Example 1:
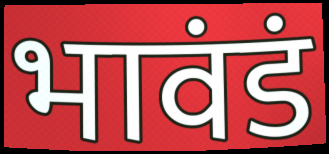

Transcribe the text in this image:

भावंडं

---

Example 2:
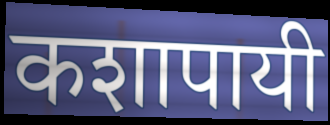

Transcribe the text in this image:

कशापायी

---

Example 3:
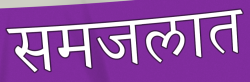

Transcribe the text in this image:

समजलात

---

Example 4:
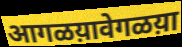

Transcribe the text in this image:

आगळय़ावेगळय़ा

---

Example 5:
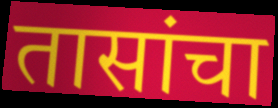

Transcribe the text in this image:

तासांचा